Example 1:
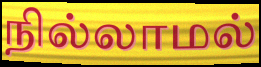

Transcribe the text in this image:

நில்லாமல்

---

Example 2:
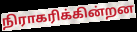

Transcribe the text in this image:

நிராகரிக்கின்றன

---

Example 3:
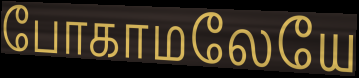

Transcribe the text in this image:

போகாமலேயே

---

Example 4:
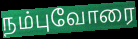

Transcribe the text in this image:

நம்புவோரை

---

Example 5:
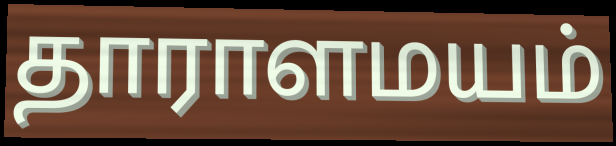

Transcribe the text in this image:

தாராளமயம்